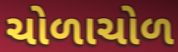
ચોળાચોળ